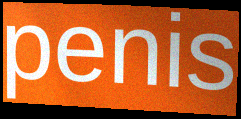
penis